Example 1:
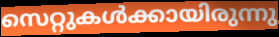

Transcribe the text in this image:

സെറ്റുകൾക്കായിരുന്നു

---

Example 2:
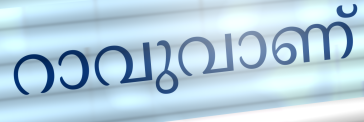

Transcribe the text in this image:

റാവുവാണ്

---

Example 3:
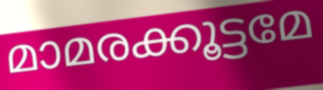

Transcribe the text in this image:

മാമരക്കൂട്ടമേ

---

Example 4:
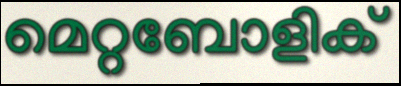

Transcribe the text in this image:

മെറ്റബോളിക്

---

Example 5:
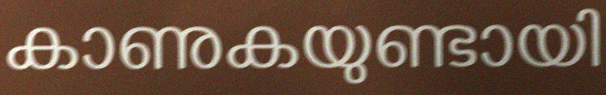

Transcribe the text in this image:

കാണുകയുണ്ടായി